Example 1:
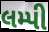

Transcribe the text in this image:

લમ્પી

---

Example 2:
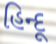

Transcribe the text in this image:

હિન્દૂ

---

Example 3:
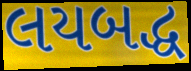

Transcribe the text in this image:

લયબદ્ધ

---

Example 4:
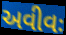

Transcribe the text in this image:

અવીવઃ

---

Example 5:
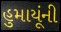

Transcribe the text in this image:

હુમાયૂંની